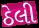
ઠેલી